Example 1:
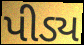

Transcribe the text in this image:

પીડ્ય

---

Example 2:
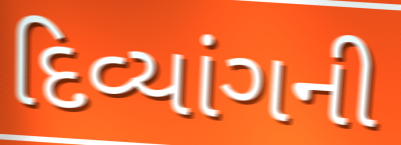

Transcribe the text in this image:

દિવ્યાંગની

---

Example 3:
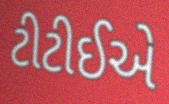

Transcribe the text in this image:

ટીટીઈએ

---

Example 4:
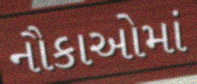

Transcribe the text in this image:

નૌકાઓમાં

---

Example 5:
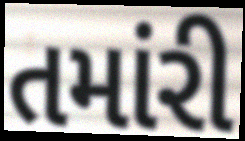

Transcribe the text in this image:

તમાંરી